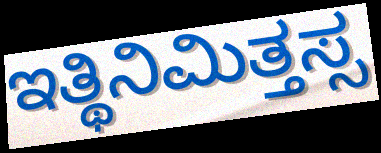
ಇತ್ಥಿನಿಮಿತ್ತಸ್ಸ